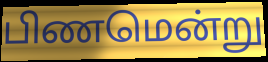
பிணமென்று